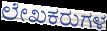
ಲೇಖಕರುಗಳ